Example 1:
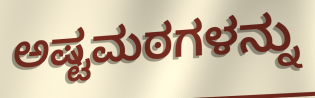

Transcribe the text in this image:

ಅಷ್ಟಮಠಗಳನ್ನು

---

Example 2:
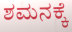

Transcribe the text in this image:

ಶಮನಕ್ಕೆ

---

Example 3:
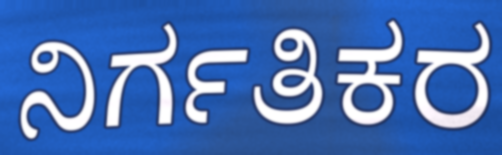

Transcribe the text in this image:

ನಿರ್ಗತಿಕರ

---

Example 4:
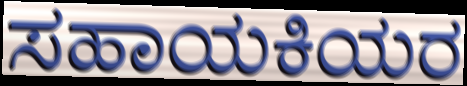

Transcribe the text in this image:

ಸಹಾಯಕಿಯರ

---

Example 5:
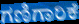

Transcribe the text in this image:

ಗಣಿಗಾರಿಕೆ